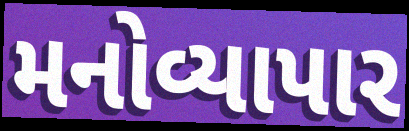
મનોવ્યાપાર